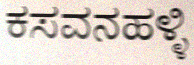
ಕಸವನಹಳ್ಳಿ